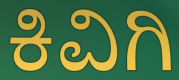
ಕಿವಿಗಿ